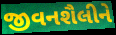
જીવનશૈલીને